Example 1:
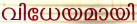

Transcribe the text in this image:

വിധേയമായി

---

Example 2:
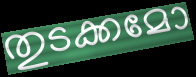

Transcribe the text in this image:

തുടക്കമോ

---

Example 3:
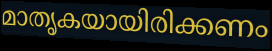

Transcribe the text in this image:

മാതൃകയായിരിക്കണം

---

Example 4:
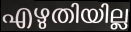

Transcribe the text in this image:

എഴുതിയില്ല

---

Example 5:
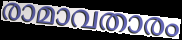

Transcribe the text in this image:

രാമാവതാരം